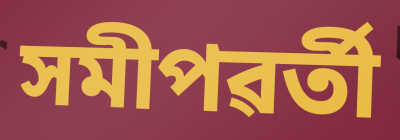
সমীপৱৰ্তী